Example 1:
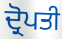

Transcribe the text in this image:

ਦ੍ਰੋਪਤੀ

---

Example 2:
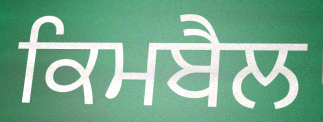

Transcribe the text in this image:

ਕਿਮਬੈਲ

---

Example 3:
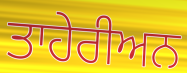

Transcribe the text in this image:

ਤਾਹੇਰੀਅਨ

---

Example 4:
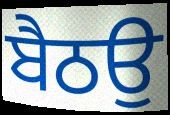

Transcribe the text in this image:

ਬੈਠਉ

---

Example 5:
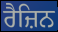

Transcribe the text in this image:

ਰੈਜ਼ਿਨ